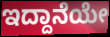
ಇದ್ದಾನೆಯೇ